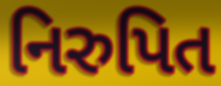
નિરુપિત